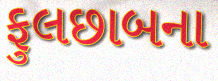
ફુલછાબના